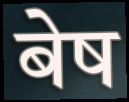
बेष